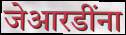
जेआरडींना